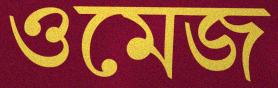
ওমেজ